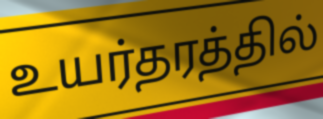
உயர்தரத்தில்